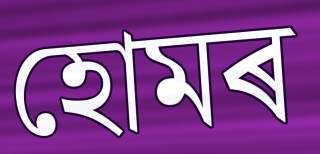
হোমৰ